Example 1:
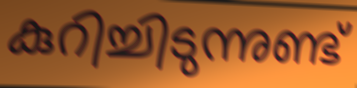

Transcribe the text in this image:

കുറിച്ചിടുന്നുണ്ട്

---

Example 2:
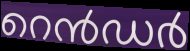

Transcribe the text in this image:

റെൻഡർ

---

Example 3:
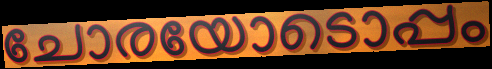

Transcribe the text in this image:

ചോരയോടൊപ്പം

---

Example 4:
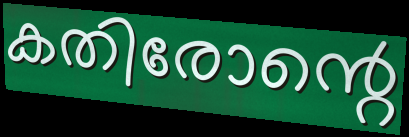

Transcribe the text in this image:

കതിരോന്റെ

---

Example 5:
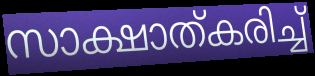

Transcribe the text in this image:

സാക്ഷാത്കരിച്ച്